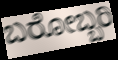
ಬರೋಬ್ಬರಿ